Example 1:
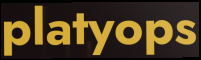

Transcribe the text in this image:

platyops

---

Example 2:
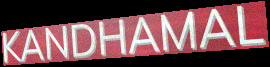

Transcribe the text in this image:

KANDHAMAL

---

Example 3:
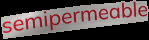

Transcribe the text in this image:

semipermeable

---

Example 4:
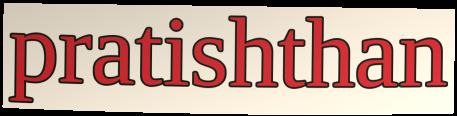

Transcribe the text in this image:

pratishthan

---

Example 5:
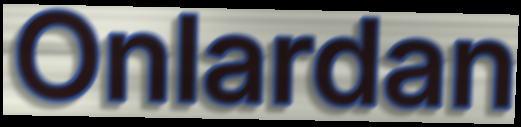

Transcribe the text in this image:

Onlardan